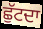
ਛੁੱਟਦਾ